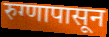
रुग्णापासून